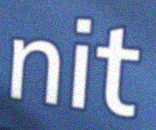
nit